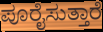
ಪೂರೈಸುತ್ತಾರೆ